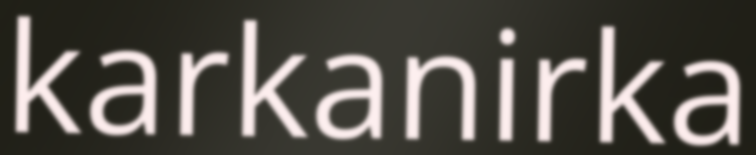
karkanirka